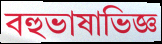
বহুভাষাভিজ্ঞ